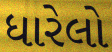
ધારેલો